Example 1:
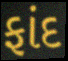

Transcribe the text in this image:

ફાંદ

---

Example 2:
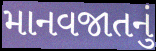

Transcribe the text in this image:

માનવજાતનું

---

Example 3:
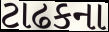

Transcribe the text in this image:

ટાઢકના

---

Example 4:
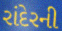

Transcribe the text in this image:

રાંદેરની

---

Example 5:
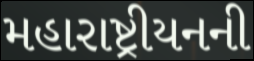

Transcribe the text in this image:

મહારાષ્ટ્રીયનની